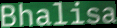
Bhalisa